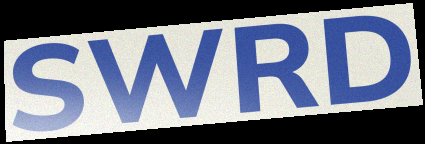
SWRD